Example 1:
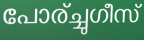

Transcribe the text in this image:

പോര്ച്ചുഗീസ്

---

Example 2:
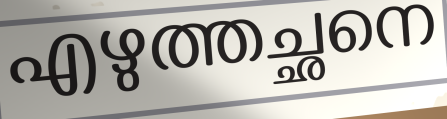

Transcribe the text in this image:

എഴുത്തച്ഛനെ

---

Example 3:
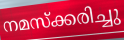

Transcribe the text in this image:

നമസ്ക്കരിച്ചു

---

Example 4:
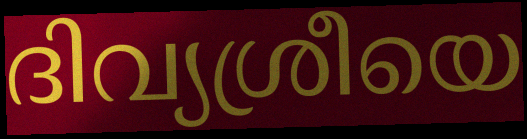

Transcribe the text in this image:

ദിവ്യശ്രീയെ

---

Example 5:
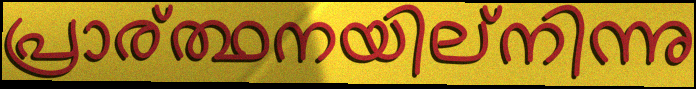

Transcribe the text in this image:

പ്രാര്ത്ഥനയില്നിന്നു